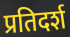
प्रतिदर्श